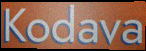
Kodava